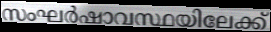
സംഘർഷാവസ്ഥയിലേക്ക്